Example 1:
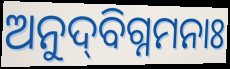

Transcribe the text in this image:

ଅନୁଦ୍‌ବିଗ୍ନମନାଃ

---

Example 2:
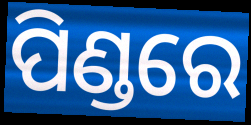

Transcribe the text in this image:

ପିଣ୍ଡରେ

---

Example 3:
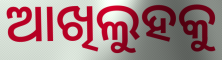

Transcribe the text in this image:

ଆଖିଲୁହକୁ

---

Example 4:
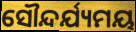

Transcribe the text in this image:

ସୌନ୍ଦର୍ଯ୍ୟମୟ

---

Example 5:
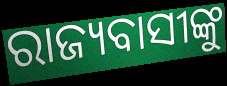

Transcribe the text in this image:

ରାଜ୍ୟବାସୀଙ୍କୁ